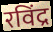
रविंद्र